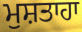
ਮੁਸ਼ਤਾਹਾ